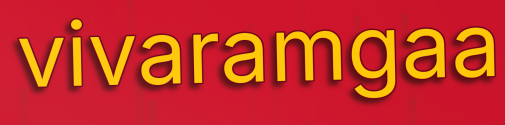
vivaramgaa